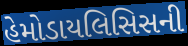
હેમોડાયલિસિસની